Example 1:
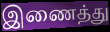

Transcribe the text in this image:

இணைத்து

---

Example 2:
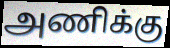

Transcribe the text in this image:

அணிக்கு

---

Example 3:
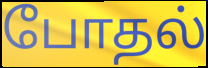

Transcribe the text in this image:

போதல்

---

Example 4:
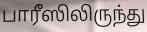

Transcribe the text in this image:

பாரீஸிலிருந்து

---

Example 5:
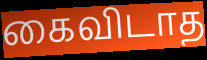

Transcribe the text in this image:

கைவிடாத